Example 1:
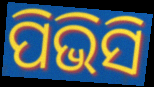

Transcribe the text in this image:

ପିଭିସି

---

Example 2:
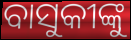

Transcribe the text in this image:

ବାସୁକୀଙ୍କୁ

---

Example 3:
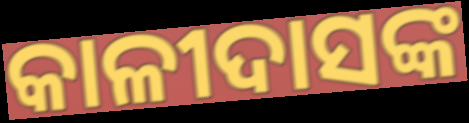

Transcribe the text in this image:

କାଳୀଦାସଙ୍କ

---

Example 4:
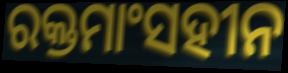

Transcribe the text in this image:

ରକ୍ତମାଂସହୀନ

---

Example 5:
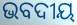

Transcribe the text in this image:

ଭବଦୀୟ